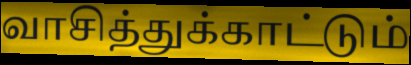
வாசித்துக்காட்டும்